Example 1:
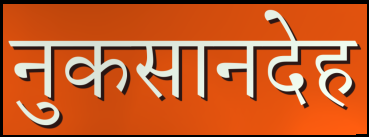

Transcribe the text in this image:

नुकसानदेह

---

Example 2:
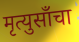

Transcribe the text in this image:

मृत्युसाँचा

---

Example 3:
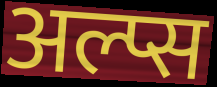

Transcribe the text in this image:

अल्प्स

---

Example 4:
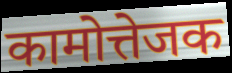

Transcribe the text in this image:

कामोत्तेजक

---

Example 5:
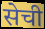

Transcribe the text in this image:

सेची